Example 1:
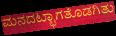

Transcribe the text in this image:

ಮನದಟ್ಟಾಗತೊಡಗಿತು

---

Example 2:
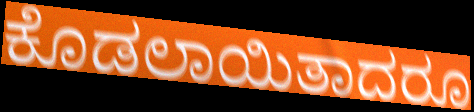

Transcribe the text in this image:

ಕೊಡಲಾಯಿತಾದರೂ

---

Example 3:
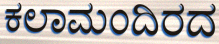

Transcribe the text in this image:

ಕಲಾಮಂದಿರದ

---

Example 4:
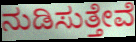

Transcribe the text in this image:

ನುಡಿಸುತ್ತೇವೆ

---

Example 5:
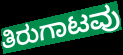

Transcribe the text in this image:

ತಿರುಗಾಟವು